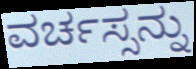
ವರ್ಚಸ್ಸನ್ನು